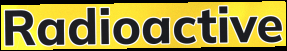
Radioactive